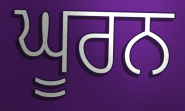
ਘੂਰਨ